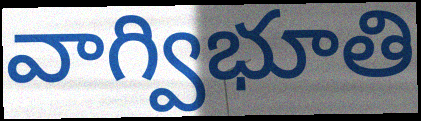
వాగ్విభూతి